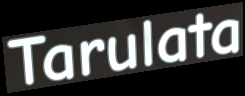
Tarulata